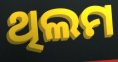
ଥିଲମ